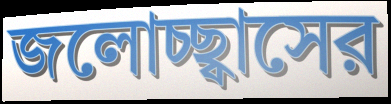
জলোচ্ছ্বাসের